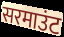
सरमाउंट